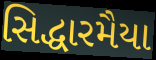
સિદ્ધારમૈયા